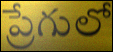
ప్రేగులో